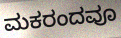
ಮಕರಂದವೂ